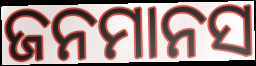
ଜନମାନସ